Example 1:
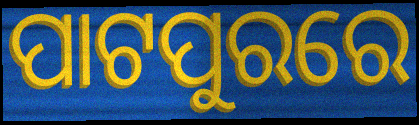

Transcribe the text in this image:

ପାଟପୁରରେ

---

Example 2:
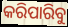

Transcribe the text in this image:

କରିପାରିବୁ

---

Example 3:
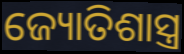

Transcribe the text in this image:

ଜ୍ୟୋତିଶାସ୍ତ୍ର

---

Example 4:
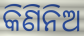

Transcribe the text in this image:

କିଣିନିଅ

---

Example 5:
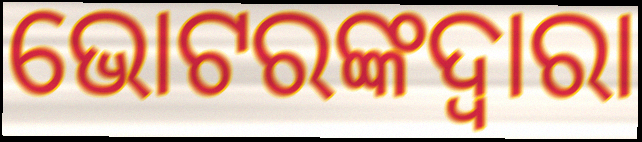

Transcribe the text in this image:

ଭୋଟରଙ୍କଦ୍ଵାରା